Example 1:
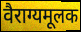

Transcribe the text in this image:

वैराग्यमूलक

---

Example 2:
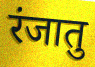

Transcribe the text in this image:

रंजातु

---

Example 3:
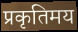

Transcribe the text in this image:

प्रकृतिमय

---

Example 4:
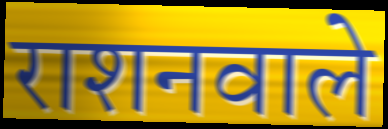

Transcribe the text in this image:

राशनवाले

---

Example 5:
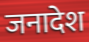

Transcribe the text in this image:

जनादेश